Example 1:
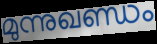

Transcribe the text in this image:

മുന്നുഖണ്ഡം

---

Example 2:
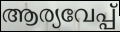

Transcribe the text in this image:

ആര്യവേപ്പ്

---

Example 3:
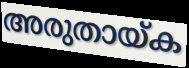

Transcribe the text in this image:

അരുതായ്ക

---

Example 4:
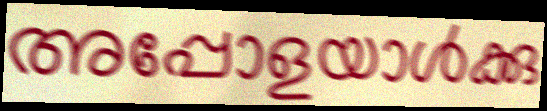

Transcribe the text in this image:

അപ്പോളയാൾക്കു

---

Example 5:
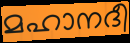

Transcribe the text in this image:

മഹാനദീ